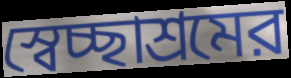
স্বেচ্ছাশ্রমের